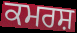
ਕਮਰਸ਼